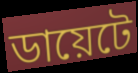
ডায়েটে